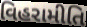
વિહરામીતિ